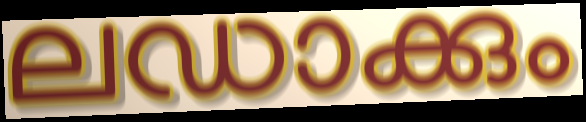
ലഡാക്കും